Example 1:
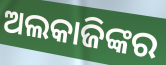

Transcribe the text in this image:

ଅଲକାଜିଙ୍କର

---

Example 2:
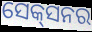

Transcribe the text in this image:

ସେକ୍‌ସନର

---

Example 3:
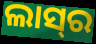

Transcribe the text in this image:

ଲାସ୍‌ର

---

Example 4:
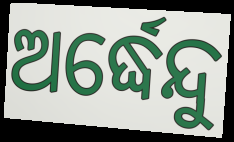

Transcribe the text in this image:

ଅର୍ଦ୍ଧେନ୍ଦୁ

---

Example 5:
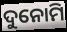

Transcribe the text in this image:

ଦୁନୋମି